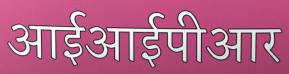
आईआईपीआर